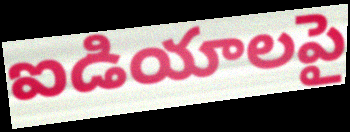
ఐడియాలపై